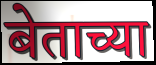
बेताच्या